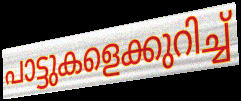
പാട്ടുകളെക്കുറിച്ച്